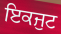
ਇਕਜੁਟ